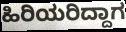
ಹಿರಿಯರಿದ್ದಾಗ